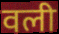
वली